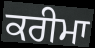
ਕਰੀਮਾ